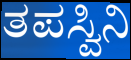
ತಪಸ್ವಿನಿ